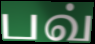
பவ்